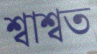
শ্বাশ্বত